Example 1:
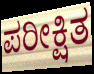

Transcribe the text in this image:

ಪರೀಕ್ಷಿತ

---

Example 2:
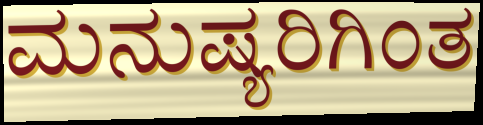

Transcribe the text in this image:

ಮನುಷ್ಯರಿಗಿಂತ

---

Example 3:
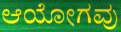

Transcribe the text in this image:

ಆಯೋಗವು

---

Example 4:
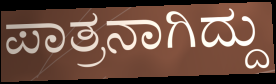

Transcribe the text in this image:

ಪಾತ್ರನಾಗಿದ್ದು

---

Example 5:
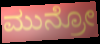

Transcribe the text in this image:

ಮುನ್ರೋ